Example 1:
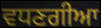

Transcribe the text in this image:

ਵਧਣਗੀਆ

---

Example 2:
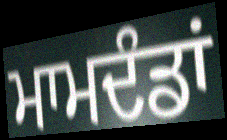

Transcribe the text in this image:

ਮਾਮਦੰਡਾਂ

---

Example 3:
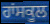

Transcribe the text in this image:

ਹਾਂਸਕੂਲ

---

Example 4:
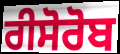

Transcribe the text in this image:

ਰੀਸੋਰੋਬ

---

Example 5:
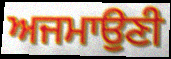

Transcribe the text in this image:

ਅਜਮਾਉਣੀ